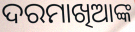
ଦରମାଖିଆଙ୍କ